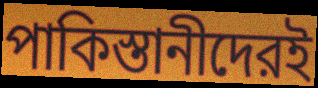
পাকিস্তানীদেরই